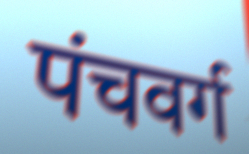
पंचवर्ग